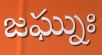
జఘ్నుః